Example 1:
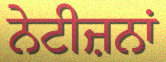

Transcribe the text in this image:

ਨੇਟੀਜ਼ਨਾਂ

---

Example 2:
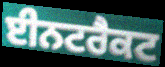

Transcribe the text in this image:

ਈਨਟਰੈਕਟ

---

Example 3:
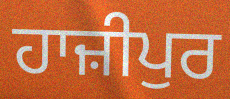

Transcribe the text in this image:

ਹਾਜ਼ੀਪੁਰ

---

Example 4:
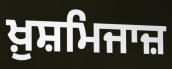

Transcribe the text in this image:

ਖ਼ੁਸ਼ਮਿਜਾਜ਼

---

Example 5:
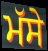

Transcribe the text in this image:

ਮੱਸੇ